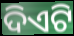
ଦିଏଟି